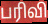
பரிவி